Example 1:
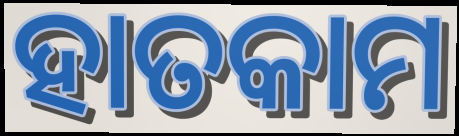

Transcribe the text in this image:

ହାତକାମ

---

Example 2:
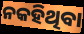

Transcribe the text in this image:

ନକହିଥିବା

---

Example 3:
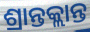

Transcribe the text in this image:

ଶ୍ରାନ୍ତକ୍ଲାନ୍ତ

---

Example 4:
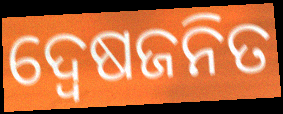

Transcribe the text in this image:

ଦ୍ଵେଷଜନିତ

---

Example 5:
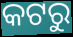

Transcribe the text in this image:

କଟରୁ